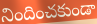
నిందించకుండా